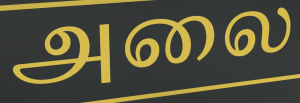
அலை